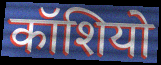
कॉशियो